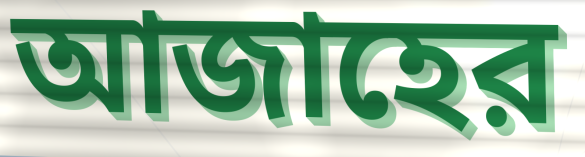
আজাহের